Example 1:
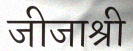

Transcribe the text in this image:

जीजाश्री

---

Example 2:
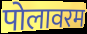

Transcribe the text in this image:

पोलावरम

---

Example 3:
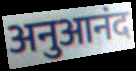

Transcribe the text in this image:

अनुआनंद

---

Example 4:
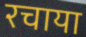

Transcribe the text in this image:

रचाया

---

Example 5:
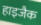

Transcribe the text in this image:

हाइजैक